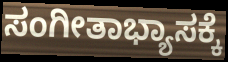
ಸಂಗೀತಾಭ್ಯಾಸಕ್ಕೆ